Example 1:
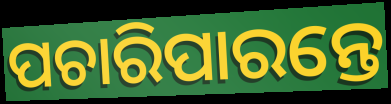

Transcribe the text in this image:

ପଚାରିପାରନ୍ତେ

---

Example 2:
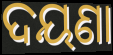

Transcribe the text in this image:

ଦୟଣା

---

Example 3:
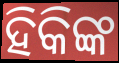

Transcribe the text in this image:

ହିକିଙ୍କ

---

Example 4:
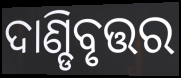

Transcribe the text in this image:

ଦାଣ୍ଡିବୃତ୍ତର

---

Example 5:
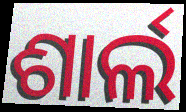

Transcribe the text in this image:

ଶାର୍ଲ